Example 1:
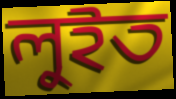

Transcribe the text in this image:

লুইত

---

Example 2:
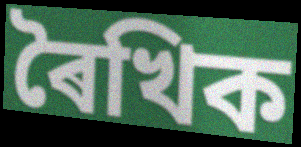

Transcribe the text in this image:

ৰৈখিক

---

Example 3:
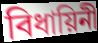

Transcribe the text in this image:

বিধায়িনী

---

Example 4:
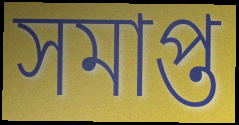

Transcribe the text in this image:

সমাপ্ত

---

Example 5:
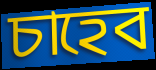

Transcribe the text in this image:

চাহেব